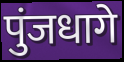
पुंजधागे